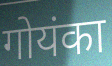
गोयंका